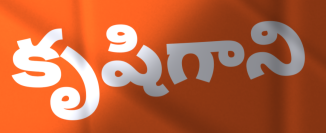
కృషిగాని